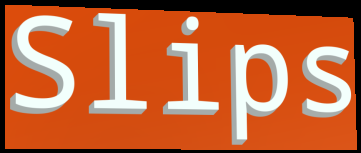
Slips